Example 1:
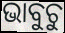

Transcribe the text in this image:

ଭାବୁଚୁ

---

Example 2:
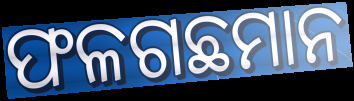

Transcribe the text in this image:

ଫଳଗଛମାନ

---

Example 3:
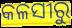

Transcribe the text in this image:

କଳସୀରୁ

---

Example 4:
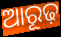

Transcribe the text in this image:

ଆରୂଢ଼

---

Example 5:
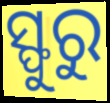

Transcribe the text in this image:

ସ୍ଫୁରୁ